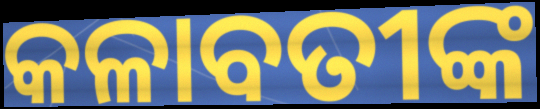
କଳାବତୀଙ୍କ